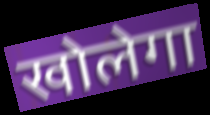
खोलेगा